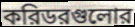
করিডরগুলোর